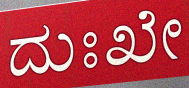
ದುಃಖೇ